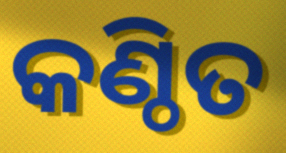
କଣ୍ଠିତ